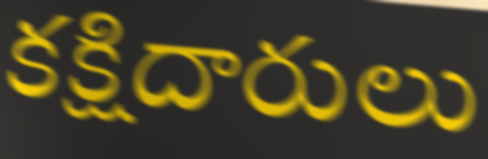
కక్షిదారులు